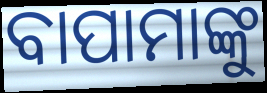
ବାପାମାଙ୍କୁ